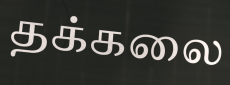
தக்கலை